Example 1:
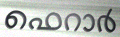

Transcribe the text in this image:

ഫെറാർ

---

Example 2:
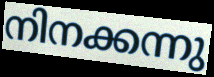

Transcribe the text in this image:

നിനക്കന്നു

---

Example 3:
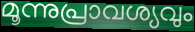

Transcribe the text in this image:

മൂന്നുപ്രാവശ്യവും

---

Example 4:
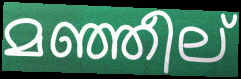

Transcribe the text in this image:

മഞ്ഞീല്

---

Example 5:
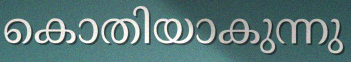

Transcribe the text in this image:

കൊതിയാകുന്നു